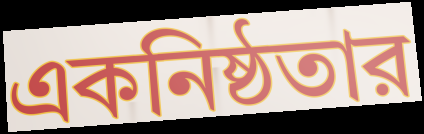
একনিষ্ঠতার